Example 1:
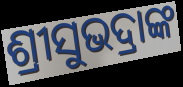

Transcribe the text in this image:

ଶ୍ରୀସୁଭଦ୍ରାଙ୍କ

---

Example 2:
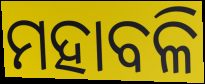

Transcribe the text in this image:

ମହାବଳି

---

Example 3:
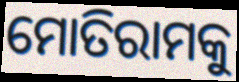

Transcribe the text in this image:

ମୋତିରାମକୁ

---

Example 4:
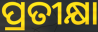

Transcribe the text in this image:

ପ୍ରତୀକ୍ଷା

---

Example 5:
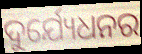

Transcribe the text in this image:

ଦୁର୍ଯ୍ୟେଧନର